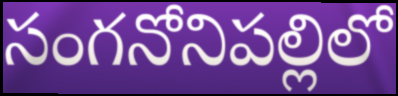
సంగనోనిపల్లిలో